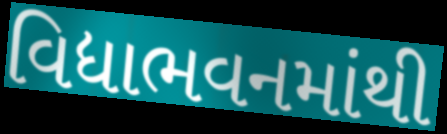
વિદ્યાભવનમાંથી